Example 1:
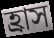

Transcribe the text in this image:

হ্রাস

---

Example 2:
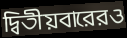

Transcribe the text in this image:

দ্বিতীয়বারেরও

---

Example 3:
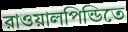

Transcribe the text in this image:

রাওয়ালপিন্ডিতে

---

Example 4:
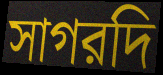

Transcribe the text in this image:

সাগরদি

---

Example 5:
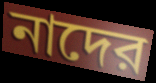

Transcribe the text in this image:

নাদের